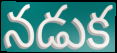
నడుక